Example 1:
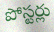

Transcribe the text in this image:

పోస్టర్లు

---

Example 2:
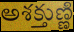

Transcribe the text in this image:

అశక్తుణ్ణి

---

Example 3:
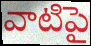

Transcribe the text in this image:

వాటిపై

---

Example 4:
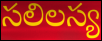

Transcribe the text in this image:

సలిలస్య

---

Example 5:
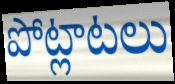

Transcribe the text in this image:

పోట్లాటలు